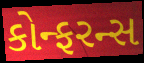
કોન્ફરન્સ